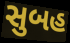
સુબહ